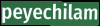
peyechilam